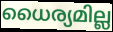
ധൈര്യമില്ല